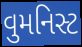
વુમનિસ્ટ